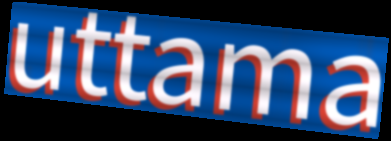
uttama